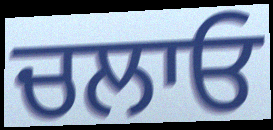
ਚਲਾਓ